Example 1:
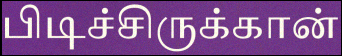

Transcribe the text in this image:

பிடிச்சிருக்கான்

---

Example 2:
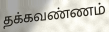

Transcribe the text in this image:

தக்கவண்ணம்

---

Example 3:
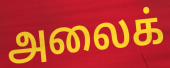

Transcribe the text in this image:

அலைக்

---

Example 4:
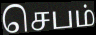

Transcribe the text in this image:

செபம்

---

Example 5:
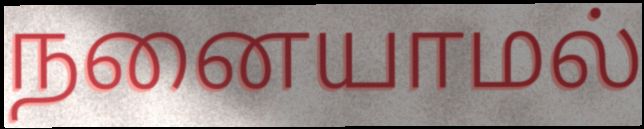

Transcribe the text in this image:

நனையாமல்